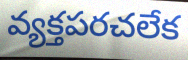
వ్యక్తపరచలేక